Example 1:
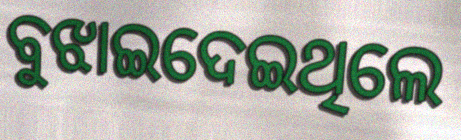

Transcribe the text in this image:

ବୁଝାଇଦେଇଥିଲେ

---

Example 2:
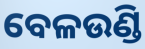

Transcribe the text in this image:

ବେଳଉଣ୍ଡି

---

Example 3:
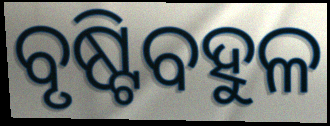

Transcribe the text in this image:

ବୃଷ୍ଟିବହୁଳ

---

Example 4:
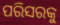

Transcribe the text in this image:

ପରିସରକୁ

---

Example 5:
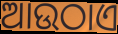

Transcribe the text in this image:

ଆଉଠାଏ